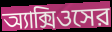
অ্যাক্সিওসের